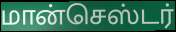
மான்செஸ்டர்